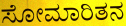
ಸೋಮಾರಿತನ